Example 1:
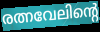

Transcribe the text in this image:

രത്നവേലിന്റെ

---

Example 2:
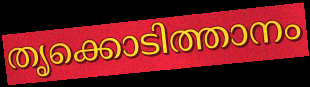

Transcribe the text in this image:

തൃക്കൊടിത്താനം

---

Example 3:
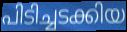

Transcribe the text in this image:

പിടിച്ചടക്കിയ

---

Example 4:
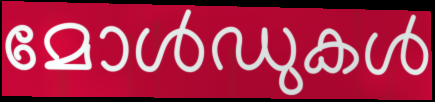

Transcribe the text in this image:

മോൾഡുകൾ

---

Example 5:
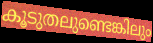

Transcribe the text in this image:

കൂടുതലുണ്ടെങ്കിലും